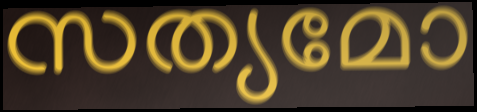
സത്യമോ